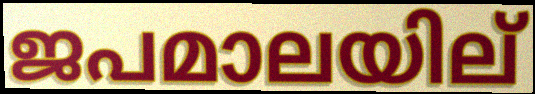
ജപമാലയില്